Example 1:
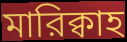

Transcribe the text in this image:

মারিক্বাহ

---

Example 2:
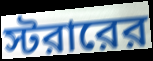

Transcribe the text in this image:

স্টরারের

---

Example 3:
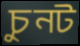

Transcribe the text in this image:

চুনট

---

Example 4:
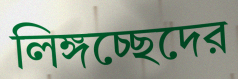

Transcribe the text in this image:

লিঙ্গচ্ছেদের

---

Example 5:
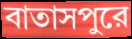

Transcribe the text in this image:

বাতাসপুরে